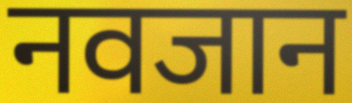
नवजान